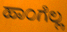
ಹಾಂಗೆಲ್ಲ